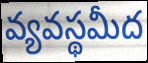
వ్యవస్థమీద